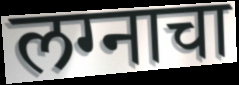
लग्नाचा